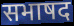
सभाषद